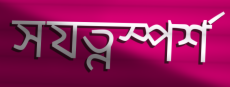
সযত্নস্পর্শ